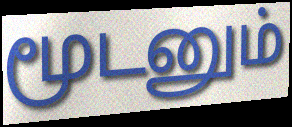
மூடனும்